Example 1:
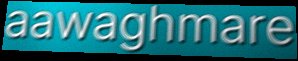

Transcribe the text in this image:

aawaghmare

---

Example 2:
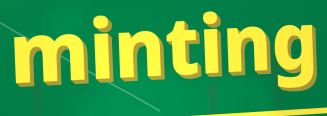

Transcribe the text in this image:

minting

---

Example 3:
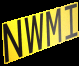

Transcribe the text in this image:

NWMI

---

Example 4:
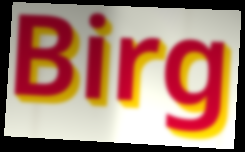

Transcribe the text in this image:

Birg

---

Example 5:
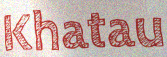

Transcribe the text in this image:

Khatau